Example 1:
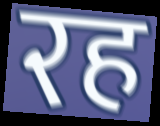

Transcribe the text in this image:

रह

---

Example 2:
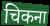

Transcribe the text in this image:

चिकना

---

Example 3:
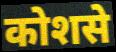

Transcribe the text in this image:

कोशसे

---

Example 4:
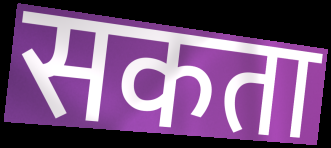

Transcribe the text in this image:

सकता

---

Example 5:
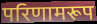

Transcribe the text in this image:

परिणामरूप